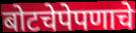
बोटचेपेपणाचे